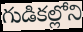
గుడికల్లోని